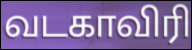
வடகாவிரி